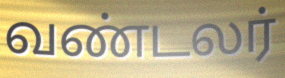
வண்டலர்